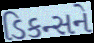
ડિકન્સને